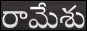
రామేశు